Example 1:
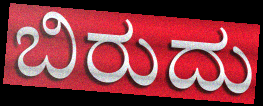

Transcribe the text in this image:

ಬಿರುದು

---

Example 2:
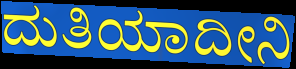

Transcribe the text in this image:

ದುತಿಯಾದೀನಿ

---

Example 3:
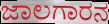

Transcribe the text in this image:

ಜಾಲಗಾರನ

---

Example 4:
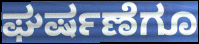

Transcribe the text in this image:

ಘರ್ಷಣೆಗೂ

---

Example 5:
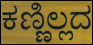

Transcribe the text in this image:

ಕಣ್ಣಿಲ್ಲದ